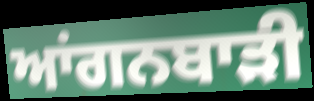
ਆਂਗਨਬਾੜੀ